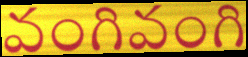
వంగివంగి